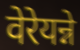
वेरेयन्ने